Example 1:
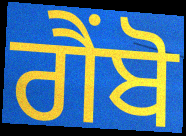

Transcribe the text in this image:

ਗੈਂਬੋ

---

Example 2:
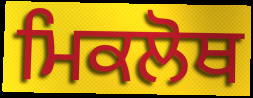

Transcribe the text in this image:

ਮਿਕਲੋਥ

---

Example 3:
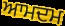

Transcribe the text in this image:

ਆਮਦਮ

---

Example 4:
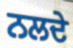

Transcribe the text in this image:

ਨਲਦੇ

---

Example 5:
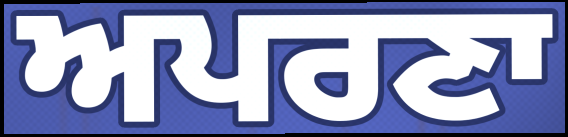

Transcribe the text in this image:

ਅਪਰਣਾ